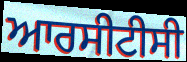
ਆਰਸੀਟੀਸੀ